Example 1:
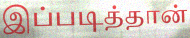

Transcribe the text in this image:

இப்படித்தான்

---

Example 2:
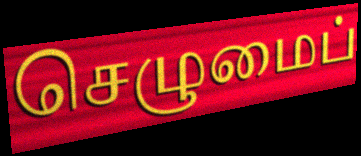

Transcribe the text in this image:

செழுமைப்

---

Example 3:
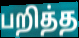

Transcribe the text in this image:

பறித்த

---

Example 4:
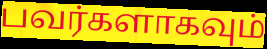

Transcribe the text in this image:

பவர்களாகவும்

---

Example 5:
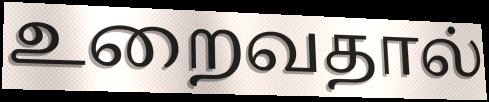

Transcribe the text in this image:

உறைவதால்